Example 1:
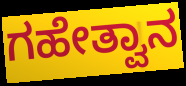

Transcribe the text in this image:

ಗಹೇತ್ವಾನ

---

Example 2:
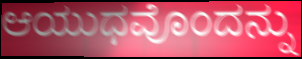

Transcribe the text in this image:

ಆಯುಧವೊಂದನ್ನು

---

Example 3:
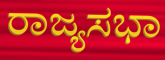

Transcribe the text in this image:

ರಾಜ್ಯಸಭಾ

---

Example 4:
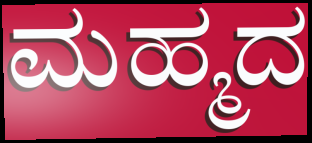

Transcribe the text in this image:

ಮಹ್ಮದ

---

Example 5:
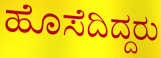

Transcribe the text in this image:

ಹೊಸೆದಿದ್ದರು